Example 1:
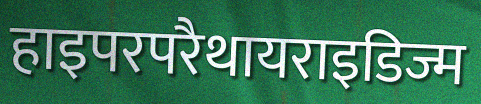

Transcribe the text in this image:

हाइपरपरैथायराइडिज्म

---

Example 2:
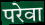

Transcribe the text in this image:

परेवा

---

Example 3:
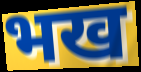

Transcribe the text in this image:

भख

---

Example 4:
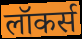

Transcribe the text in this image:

लॉकर्स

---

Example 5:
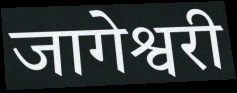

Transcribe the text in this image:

जागेश्वरी